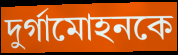
দুর্গামোহনকে